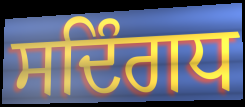
ਸਦਿੰਗਧ